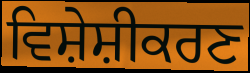
ਵਿਸ਼ੇਸ਼ੀਕਰਣ